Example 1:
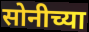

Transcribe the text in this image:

सोनीच्या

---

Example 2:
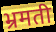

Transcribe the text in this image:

भ्रमती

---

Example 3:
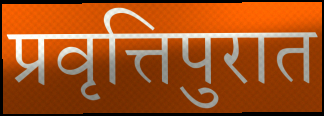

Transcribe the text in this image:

प्रवृत्तिपुरात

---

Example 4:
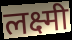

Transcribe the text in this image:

लक्ष्मी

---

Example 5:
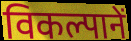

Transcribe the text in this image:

विकल्पानें